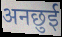
अनछुई